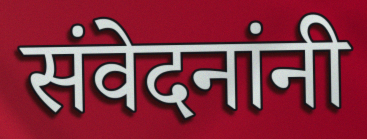
संवेदनांनी